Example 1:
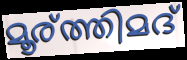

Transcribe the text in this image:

മൂര്ത്തിമദ്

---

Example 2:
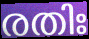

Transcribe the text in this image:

രതിഃ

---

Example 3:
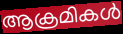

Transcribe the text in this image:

ആക്രമികൾ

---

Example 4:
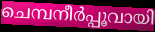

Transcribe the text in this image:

ചെമ്പനീർപ്പൂവായി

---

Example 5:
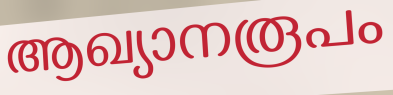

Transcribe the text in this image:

ആഖ്യാനരൂപം